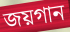
জয়গান